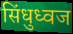
सिंधुध्वज